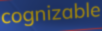
cognizable